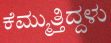
ಕೆಮ್ಮುತ್ತಿದ್ದಳು